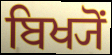
ਬਿਖ੍ਯੋਂ